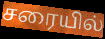
சரையில்